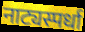
नाट्यस्पर्धा